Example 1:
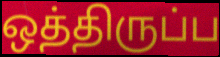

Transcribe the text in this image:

ஒத்திருப்ப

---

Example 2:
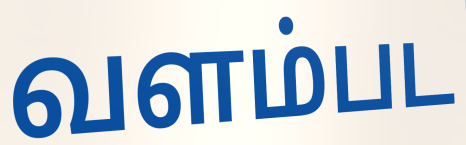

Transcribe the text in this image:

வளம்பட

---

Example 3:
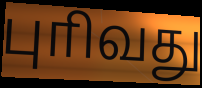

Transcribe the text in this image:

புரிவது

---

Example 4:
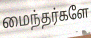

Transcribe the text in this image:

மைந்தர்களே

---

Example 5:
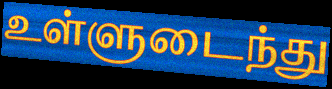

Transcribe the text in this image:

உள்ளுடைந்து